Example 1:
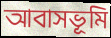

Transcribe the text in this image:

আবাসভূমি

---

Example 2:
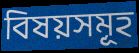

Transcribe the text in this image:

বিষয়সমূহ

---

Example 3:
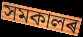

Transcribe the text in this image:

সমকালৰ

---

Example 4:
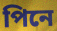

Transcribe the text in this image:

পিনে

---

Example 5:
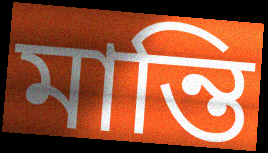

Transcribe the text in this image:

মান্তি